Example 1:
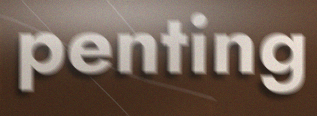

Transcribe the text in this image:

penting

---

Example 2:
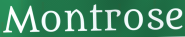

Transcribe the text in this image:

Montrose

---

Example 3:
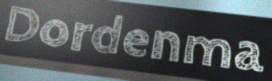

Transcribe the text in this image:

Dordenma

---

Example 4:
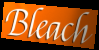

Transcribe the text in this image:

Bleach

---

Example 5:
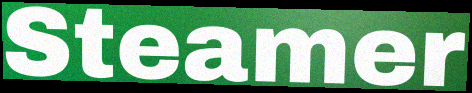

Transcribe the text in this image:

Steamer